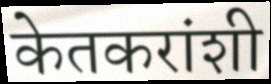
केतकरांशी